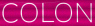
COLON